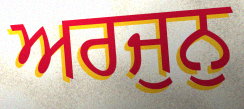
ਅਰਜੁਨੁ